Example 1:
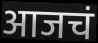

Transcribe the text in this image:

आजचं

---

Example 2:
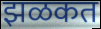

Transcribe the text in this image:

झळकत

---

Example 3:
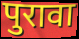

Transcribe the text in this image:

पुरावा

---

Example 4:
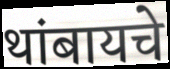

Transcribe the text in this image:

थांबायचे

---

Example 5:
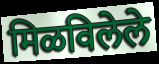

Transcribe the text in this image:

मिळविलेले